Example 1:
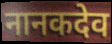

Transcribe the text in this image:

नानकदेव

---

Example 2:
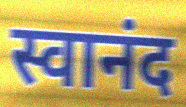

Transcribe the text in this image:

स्वानंद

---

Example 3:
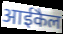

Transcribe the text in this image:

आईकैल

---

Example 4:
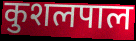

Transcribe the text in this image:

कुशलपाल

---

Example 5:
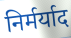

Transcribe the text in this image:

निर्मर्याद